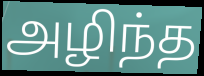
அழிந்த